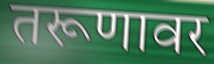
तरूणावर